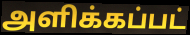
அளிக்கப்பட்